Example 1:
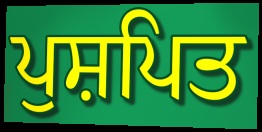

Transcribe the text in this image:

ਪੁਸ਼ਪਿਤ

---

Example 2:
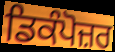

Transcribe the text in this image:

ਡਿਕੰਪੋਜ਼ਰ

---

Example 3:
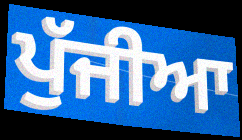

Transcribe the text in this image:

ਪੁੱਜੀਆ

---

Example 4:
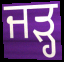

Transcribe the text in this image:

ਜੜ੍ਹ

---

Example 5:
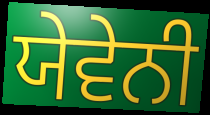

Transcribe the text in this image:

ਯੇਵੇਨੀ